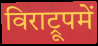
विराट्रूपमें